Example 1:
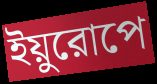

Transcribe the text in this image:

ইয়ুরোপে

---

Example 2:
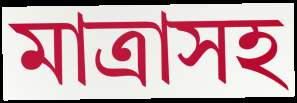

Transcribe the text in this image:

মাত্রাসহ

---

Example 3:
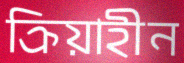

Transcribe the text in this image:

ক্রিয়াহীন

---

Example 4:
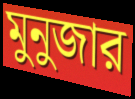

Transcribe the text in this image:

মুনুজার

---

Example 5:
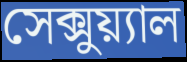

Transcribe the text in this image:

সেক্সুয়্যাল